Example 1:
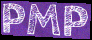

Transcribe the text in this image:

PMP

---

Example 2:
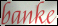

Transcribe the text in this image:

banke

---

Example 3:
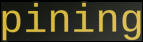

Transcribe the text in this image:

pining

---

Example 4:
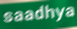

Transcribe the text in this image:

saadhya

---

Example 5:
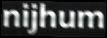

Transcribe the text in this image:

nijhum